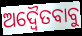
ଅଦ୍ୱୈତବାବୁ